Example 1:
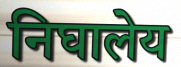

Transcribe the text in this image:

निघालेय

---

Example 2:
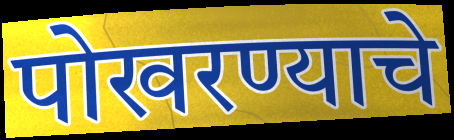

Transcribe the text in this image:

पोखरण्याचे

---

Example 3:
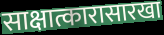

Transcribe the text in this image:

साक्षात्कारासारखा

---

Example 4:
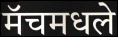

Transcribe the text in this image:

मॅचमधले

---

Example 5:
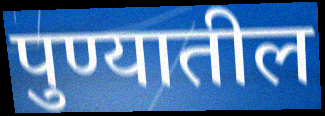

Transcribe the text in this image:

पुण्यातील